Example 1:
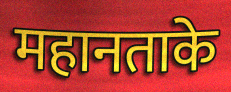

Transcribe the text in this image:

महानताके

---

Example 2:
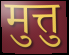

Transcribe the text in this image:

मुत्तु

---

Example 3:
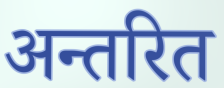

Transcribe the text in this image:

अन्तरित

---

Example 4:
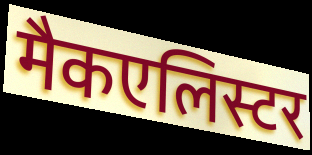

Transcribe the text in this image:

मैकएलिस्टर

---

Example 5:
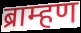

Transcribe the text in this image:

ब्राम्हण